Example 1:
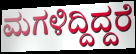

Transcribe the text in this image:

ಮಗಳಿದ್ದಿದ್ದರೆ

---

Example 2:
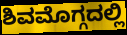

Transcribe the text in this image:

ಶಿವಮೊಗ್ಗದಲ್ಲಿ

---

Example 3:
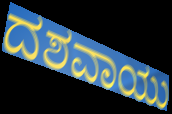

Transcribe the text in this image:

ದಶವಾಯು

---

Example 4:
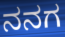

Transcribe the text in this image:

ನನಗ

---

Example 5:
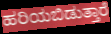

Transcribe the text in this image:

ಹರಿಯಬಿಡುತ್ತಾರೆ